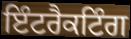
ਇੰਟਰੈਕਟਿੰਗ